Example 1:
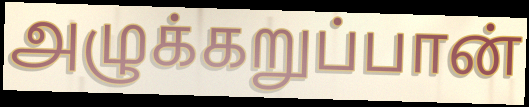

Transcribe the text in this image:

அழுக்கறுப்பான்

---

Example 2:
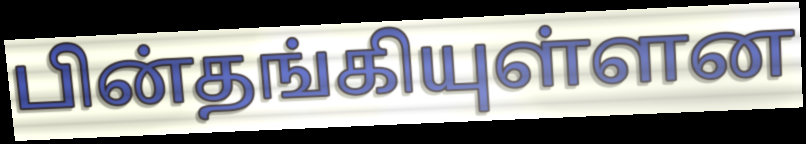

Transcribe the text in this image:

பின்தங்கியுள்ளன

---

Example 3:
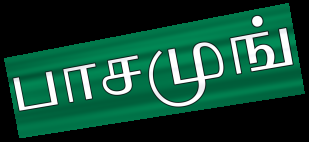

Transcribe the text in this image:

பாசமுங்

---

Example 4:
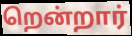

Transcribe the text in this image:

றென்றார்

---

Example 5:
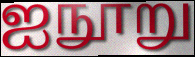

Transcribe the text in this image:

ஐநூறு